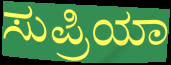
ಸುಪ್ರಿಯಾ